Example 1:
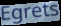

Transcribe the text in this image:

Egrets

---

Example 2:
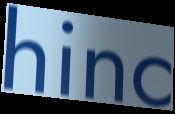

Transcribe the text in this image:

hinc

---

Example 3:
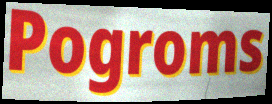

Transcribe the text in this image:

Pogroms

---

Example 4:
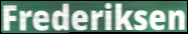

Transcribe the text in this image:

Frederiksen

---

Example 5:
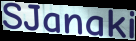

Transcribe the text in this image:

SJanaki